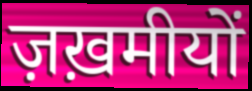
ज़ख़मीयों